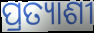
ପ୍ରତ୍ୟାଶୀ